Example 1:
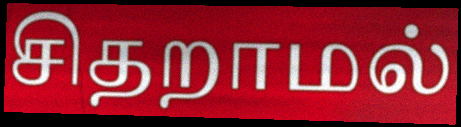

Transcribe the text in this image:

சிதறாமல்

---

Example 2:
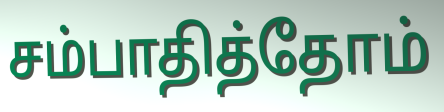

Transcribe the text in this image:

சம்பாதித்தோம்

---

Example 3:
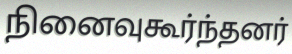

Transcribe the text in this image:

நினைவுகூர்ந்தனர்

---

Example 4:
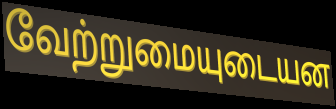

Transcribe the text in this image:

வேற்றுமையுடையன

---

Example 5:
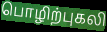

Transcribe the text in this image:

பொழிற்புகலி